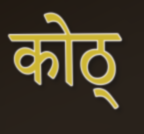
कोठ्